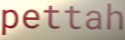
pettah